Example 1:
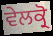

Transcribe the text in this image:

ਵੇਲਕ੍ਰੋ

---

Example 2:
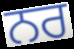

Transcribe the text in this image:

ਨਰ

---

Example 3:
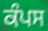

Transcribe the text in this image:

ਕੰਪਸ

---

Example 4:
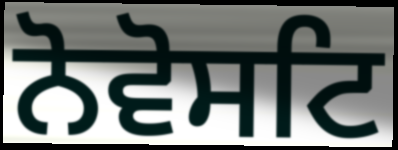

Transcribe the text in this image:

ਨੋਵੋਸਟਿ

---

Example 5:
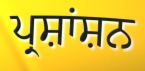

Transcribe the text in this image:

ਪ੍ਰਸ਼ਾਂਸ਼ਨ